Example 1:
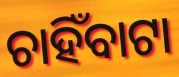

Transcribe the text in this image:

ଚାହିଁବାଟା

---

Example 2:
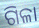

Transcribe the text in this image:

ଗିଳା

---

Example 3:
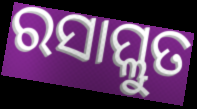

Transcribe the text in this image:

ରସାପ୍ଲୁତ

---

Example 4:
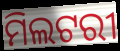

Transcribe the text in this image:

ମିଲଟରୀ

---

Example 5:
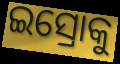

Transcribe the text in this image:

ଇସ୍ରୋକୁ